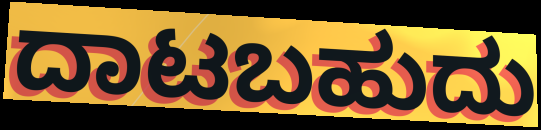
ದಾಟಬಹುದು